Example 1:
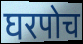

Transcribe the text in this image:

घरपोच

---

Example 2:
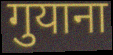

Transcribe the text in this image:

गुयाना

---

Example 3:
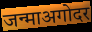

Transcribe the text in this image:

जन्माअगोदर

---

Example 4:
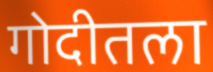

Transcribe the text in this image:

गोदीतला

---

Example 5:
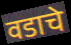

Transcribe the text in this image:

वडाचे